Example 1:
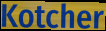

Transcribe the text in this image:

Kotcher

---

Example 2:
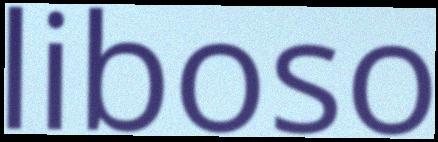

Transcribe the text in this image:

liboso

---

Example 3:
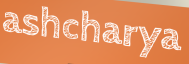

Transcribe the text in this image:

ashcharya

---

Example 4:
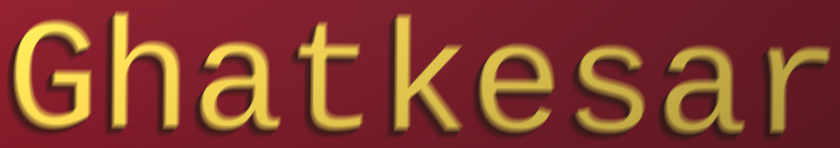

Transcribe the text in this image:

Ghatkesar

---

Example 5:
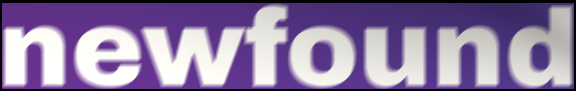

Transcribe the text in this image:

newfound